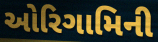
ઓરિગામિની